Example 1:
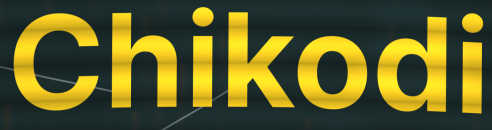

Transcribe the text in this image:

Chikodi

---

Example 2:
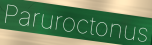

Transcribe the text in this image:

Paruroctonus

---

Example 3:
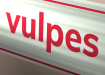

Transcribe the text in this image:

vulpes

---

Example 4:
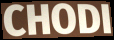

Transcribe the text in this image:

CHODI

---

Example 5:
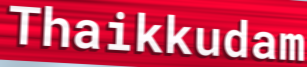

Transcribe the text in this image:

Thaikkudam